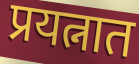
प्रयत्नात